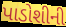
પાડોશીની